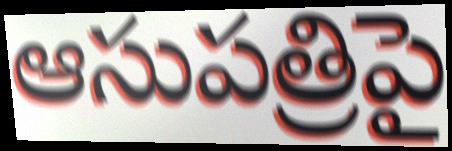
ఆసుపత్రిపై